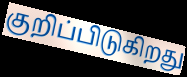
குறிப்பிடுகிறது